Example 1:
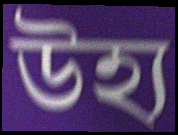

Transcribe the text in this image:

উহ্য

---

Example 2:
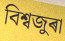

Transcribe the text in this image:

বিশ্বজুৰা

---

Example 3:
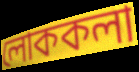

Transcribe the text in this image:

লোককলা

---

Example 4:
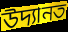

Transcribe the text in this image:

উদ্যানত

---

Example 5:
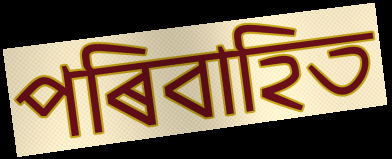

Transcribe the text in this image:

পৰিবাহিত